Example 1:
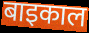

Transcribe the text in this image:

बाइकाल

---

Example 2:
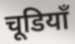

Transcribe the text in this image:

चूडियाँ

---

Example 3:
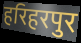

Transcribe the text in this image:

हरिहरपुर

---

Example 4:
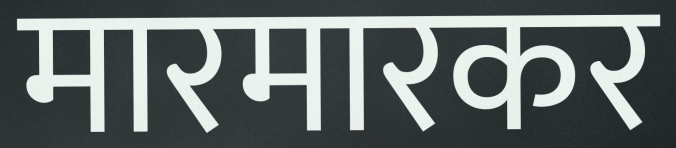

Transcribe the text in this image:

मारमारकर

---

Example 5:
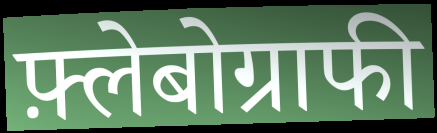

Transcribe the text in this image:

फ़्लेबोग्राफी